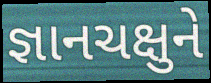
જ્ઞાનચક્ષુને